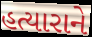
હત્યારાને